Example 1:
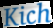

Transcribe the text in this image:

Kich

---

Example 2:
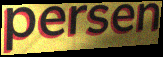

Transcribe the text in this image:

persen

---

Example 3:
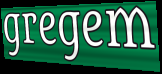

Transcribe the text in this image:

gregem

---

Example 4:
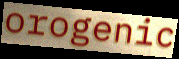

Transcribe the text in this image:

orogenic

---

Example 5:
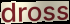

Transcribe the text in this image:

dross